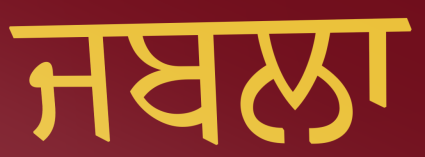
ਜਬਲਾ